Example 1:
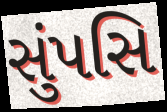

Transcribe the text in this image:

સુંપસિ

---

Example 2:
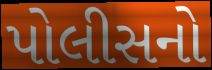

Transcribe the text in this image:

પોલીસનો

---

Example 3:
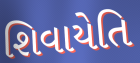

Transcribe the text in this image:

શિવાયેતિ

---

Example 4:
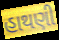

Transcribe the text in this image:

હાથણી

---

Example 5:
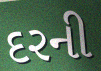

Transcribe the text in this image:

દરની